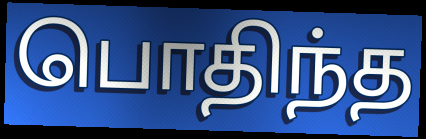
பொதிந்த